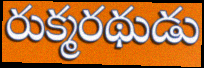
రుక్మరథుడు